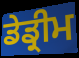
ਡੇਡ੍ਰੀਮ